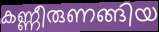
കണ്ണീരുണങ്ങിയ